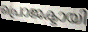
പ്രൊജക്ടായി